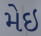
મેઇ